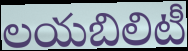
లయబిలిటీ